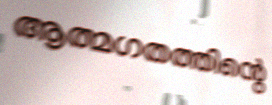
ആത്മഗതത്തിന്റെ